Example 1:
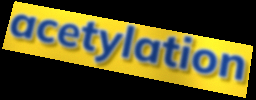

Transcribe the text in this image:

acetylation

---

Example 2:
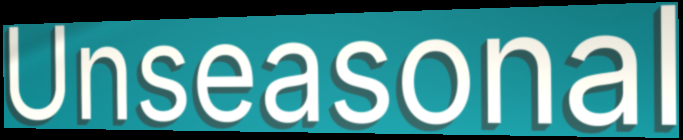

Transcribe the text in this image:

Unseasonal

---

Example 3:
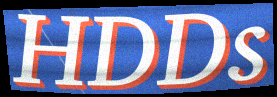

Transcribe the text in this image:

HDDs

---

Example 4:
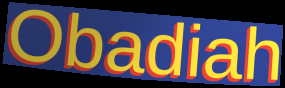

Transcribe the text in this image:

Obadiah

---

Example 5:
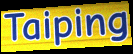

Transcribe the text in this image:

Taiping